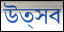
উত্সব